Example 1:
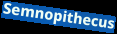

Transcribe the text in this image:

Semnopithecus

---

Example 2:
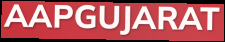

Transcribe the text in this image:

AAPGUJARAT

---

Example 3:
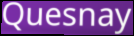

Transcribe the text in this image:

Quesnay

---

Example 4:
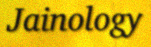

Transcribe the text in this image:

Jainology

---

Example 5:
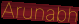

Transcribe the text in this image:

Arunabh